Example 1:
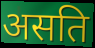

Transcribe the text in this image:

असति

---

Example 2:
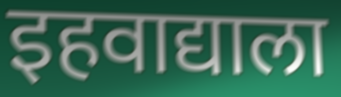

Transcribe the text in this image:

इहवाद्याला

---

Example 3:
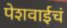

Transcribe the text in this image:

पेशवाईचं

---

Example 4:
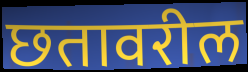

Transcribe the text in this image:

छतावरील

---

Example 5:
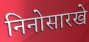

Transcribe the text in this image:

निनोसारखे